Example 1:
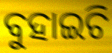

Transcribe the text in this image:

ବୁହାଇଚି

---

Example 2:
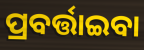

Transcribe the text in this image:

ପ୍ରବର୍ତ୍ତାଇବା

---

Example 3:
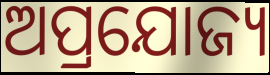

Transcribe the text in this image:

ଅପ୍ରଯୋଜ୍ୟ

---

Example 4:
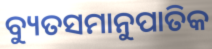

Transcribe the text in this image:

ବ୍ୟୁତସମାନୁପାତିକ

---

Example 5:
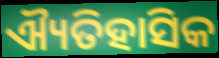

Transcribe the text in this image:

ଐ୍ୟତିହାସିକ